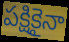
పక్షికైనా